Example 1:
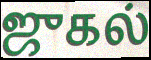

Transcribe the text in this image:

ஜுகல்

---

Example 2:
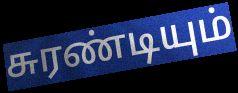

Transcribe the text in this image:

சுரண்டியும்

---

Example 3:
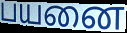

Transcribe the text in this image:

பயனை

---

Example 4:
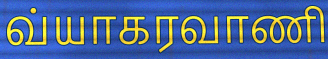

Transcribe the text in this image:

வ்யாகரவாணி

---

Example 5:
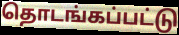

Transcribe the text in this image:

தொடங்கப்பட்டு